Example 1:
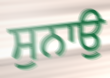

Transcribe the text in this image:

ਸੁਨਾਉ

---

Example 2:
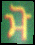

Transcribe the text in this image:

ਮੋ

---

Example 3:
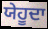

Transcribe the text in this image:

ਯੇਹੂਦਾ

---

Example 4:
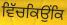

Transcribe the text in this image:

ਵਿੱਚਕਿਉਂਕਿ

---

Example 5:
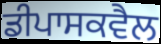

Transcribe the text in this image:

ਡੀਪਾਸਕਵੈਲ